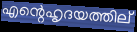
എന്റെഹൃദയത്തില്